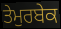
ਤੇਮੁਰਬੇਕ